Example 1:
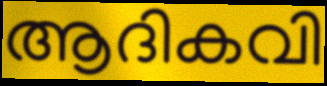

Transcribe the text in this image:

ആദികവി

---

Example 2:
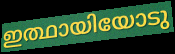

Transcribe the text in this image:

ഇത്ഥായിയോടു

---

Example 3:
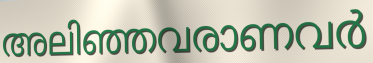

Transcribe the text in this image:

അലിഞ്ഞവരാണവർ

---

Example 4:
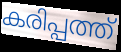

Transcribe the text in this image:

കരിപ്പത്ത്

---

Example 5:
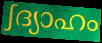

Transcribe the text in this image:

ഽദ്യാഹം